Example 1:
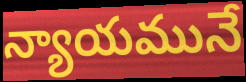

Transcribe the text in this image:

న్యాయమునే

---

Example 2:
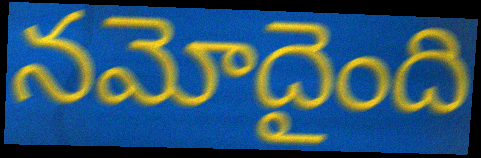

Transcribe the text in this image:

నమోదైంది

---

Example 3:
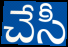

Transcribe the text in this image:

చేసీ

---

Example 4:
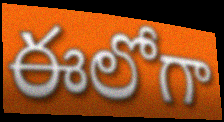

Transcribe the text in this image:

ఈలోగా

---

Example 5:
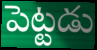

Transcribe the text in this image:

పెట్టడు